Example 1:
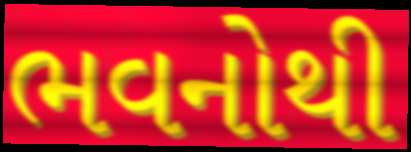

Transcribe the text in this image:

ભવનોથી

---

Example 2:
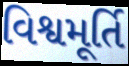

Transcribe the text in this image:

વિશ્વમૂર્તિ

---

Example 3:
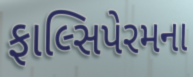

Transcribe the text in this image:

ફાલ્સિપેરમના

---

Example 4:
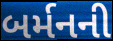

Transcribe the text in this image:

બર્મનની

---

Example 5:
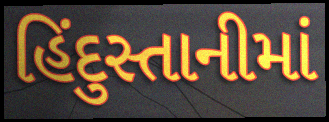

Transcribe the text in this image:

હિંદુસ્તાનીમાં